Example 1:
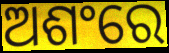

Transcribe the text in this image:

ଅଶଂରେ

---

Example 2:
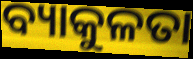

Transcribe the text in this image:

ବ୍ୟାକୁଳତା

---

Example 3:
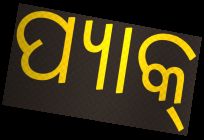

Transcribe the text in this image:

ପ୍ୟାକ୍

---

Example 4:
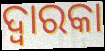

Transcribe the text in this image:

ଦ୍ୱାରକା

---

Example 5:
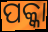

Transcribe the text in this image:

ପକ୍କା